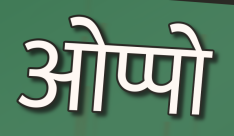
ओप्पो